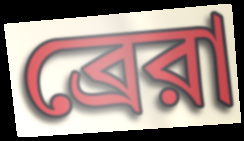
ব্রেরা